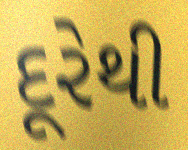
દૂરેથી